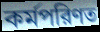
কর্মপরিণত